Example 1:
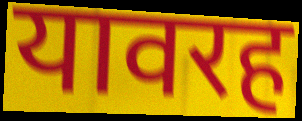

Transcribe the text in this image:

यावरह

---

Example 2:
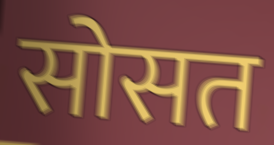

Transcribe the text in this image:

सोसत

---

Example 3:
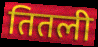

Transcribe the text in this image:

तितली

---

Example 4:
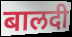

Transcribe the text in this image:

बालदी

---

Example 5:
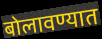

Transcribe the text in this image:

बोलावण्यात